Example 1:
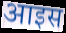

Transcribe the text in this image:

आइस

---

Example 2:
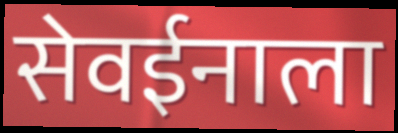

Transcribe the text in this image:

सेवईनाला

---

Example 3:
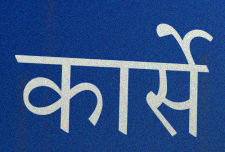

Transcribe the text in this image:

कार्से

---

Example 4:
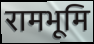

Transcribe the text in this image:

रामभूमि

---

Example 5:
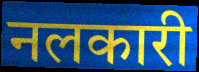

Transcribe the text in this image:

नलकारी